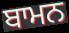
ਬਾਮਨ